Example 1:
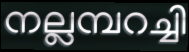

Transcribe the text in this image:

നല്ലമ്പറച്ചി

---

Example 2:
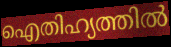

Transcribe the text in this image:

ഐതിഹ്യത്തിൽ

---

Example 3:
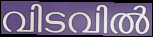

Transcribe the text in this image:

വിടവിൽ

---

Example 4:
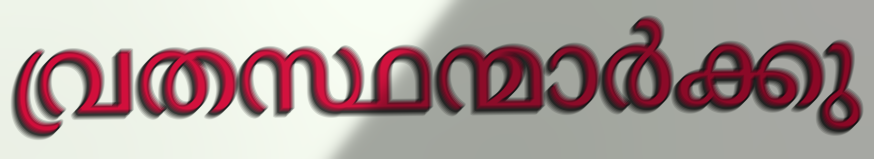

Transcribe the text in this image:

വ്രതസ്ഥന്മാർക്കു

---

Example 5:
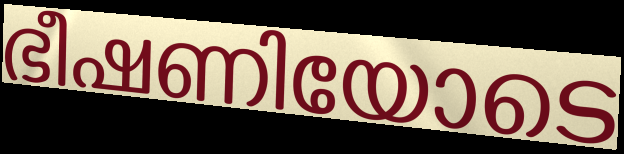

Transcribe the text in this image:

ഭീഷണിയോടെ